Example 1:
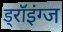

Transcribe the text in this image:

ड्रॉइंग्ज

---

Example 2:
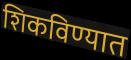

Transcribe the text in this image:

शिकविण्यात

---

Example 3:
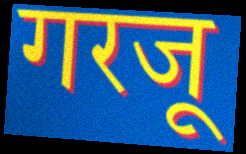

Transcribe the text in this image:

गरजू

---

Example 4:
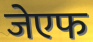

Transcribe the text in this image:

जेएफ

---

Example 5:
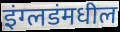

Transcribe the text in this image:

इंग्लडंमधील